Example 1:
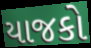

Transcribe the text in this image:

યાજકો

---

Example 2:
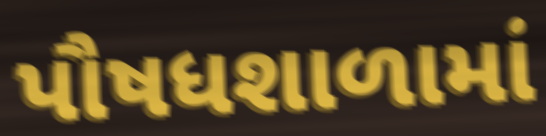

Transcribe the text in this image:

પૌષધશાળામાં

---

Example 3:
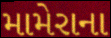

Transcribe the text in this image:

મામેરાના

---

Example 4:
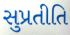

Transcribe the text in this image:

સુપ્રતીતિ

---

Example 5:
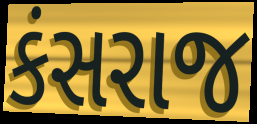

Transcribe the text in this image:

કંસરાજ